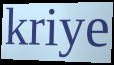
kriye